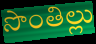
సొంతిల్లు